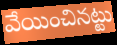
వేయించినట్టు